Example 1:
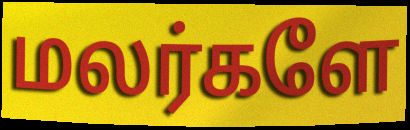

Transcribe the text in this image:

மலர்களே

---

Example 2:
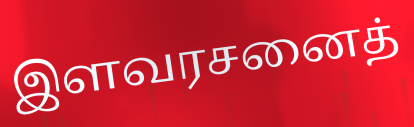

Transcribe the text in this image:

இளவரசனைத்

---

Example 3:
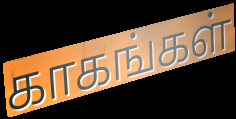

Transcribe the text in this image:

காகங்கள்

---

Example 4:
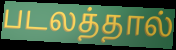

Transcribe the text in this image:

படலத்தால்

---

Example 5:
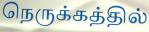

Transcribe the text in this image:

நெருக்கத்தில்